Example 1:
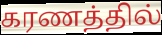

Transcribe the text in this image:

கரணத்தில்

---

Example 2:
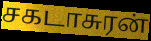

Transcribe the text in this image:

சகடாசுரன்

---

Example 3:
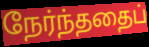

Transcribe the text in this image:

நேர்ந்ததைப்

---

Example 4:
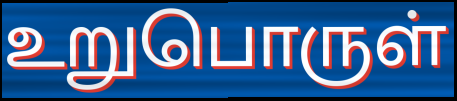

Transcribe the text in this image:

உறுபொருள்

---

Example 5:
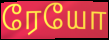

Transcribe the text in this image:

ரேயோ